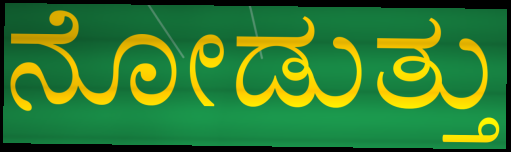
ನೋಡುತ್ತು